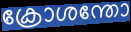
ക്രോശന്തോ